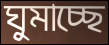
ঘুমাচ্ছে